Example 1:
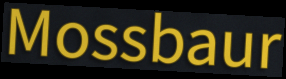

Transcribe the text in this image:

Mossbaur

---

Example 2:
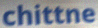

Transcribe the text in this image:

chittne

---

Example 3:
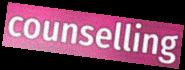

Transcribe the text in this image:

counselling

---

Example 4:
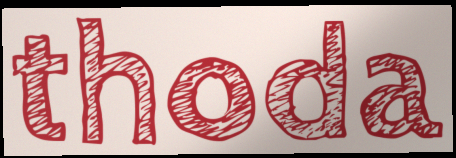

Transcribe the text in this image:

thoda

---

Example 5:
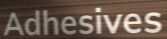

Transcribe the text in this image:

Adhesives